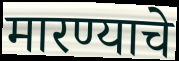
मारण्याचे